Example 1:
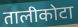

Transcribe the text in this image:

तालीकोटा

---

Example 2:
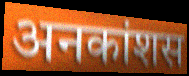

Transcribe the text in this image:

अनकांशस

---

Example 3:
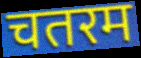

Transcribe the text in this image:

चतरम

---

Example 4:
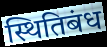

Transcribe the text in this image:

स्थितिबंध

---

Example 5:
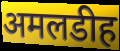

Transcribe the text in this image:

अमलडीह